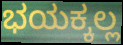
ಭಯಕ್ಕಲ್ಲ